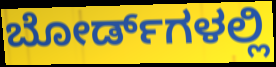
ಬೋರ್ಡ್‌ಗಳಲ್ಲಿ